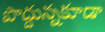
పొద్దున్నకూడా